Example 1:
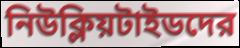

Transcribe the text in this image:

নিউক্লিয়টাইডদের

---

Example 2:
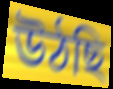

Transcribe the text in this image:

উঠছি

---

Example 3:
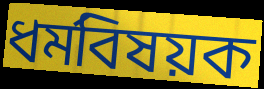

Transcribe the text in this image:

ধর্মবিষয়ক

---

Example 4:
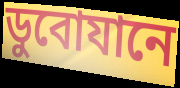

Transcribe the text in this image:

ডুবোযানে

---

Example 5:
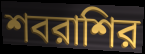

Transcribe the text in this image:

শবরাশির